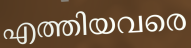
എത്തിയവരെ